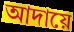
আদায়ে